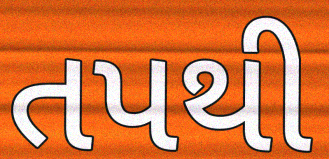
તપથી